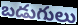
బడుగులు